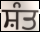
ਸ਼ੰਤ